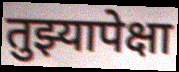
तुझ्यापेक्षा